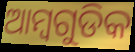
ଆମ୍ବଗୁଡିକ